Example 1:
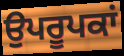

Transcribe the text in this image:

ਉਪਰੂਪਕਾਂ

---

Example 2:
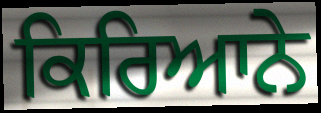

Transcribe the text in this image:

ਕਿਰਿਆਨੇ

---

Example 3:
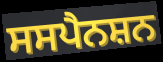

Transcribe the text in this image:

ਸਸਪੈਨਸ਼ਨ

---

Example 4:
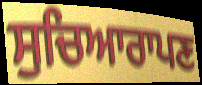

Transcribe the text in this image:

ਸੁਚਿਆਰਾਪਣ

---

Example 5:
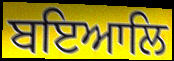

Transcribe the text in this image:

ਬਇਆਲਿ